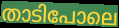
താടിപോലെ